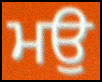
ਮਉ